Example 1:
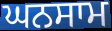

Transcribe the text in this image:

ਘਨਸਾਮ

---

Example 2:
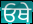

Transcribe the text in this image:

ਓਥੇ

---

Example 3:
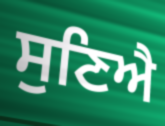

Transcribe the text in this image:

ਸੁਣਿਐ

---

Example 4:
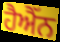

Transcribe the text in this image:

ਹੈਐੱਨ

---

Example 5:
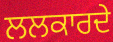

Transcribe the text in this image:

ਲਲਕਾਰਦੇ